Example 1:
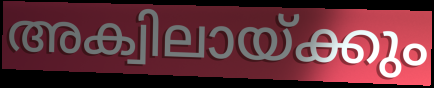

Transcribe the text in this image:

അക്വിലായ്ക്കും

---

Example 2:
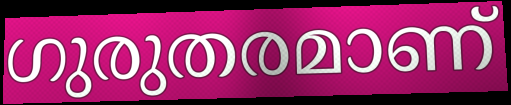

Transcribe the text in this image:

ഗുരുതരമാണ്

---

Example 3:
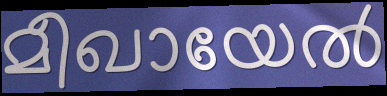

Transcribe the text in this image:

മീഖായേൽ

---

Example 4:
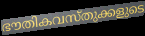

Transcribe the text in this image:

ഭൗതികവസ്തുക്കളുടെ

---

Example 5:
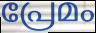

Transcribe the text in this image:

പ്രേമം